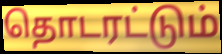
தொடரட்டும்